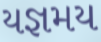
યજ્ઞમય